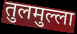
तुलमुल्ला